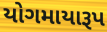
યોગમાયારૂપ